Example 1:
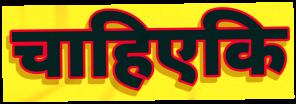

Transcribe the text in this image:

चाहिएकि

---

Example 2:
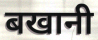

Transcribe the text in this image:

बखानी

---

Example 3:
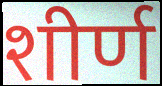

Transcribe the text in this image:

शीर्ण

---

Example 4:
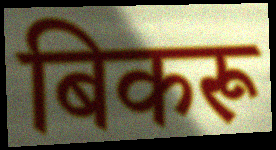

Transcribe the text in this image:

बिकरू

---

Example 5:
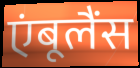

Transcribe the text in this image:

एंबूलैंस